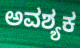
ಅವಶ್ಯಕ